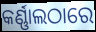
କର୍ଣ୍ଣାଲଠାରେ